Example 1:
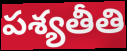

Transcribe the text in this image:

పశ్యతీతి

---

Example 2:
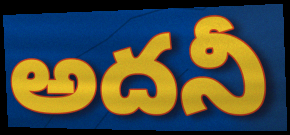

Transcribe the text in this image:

అదనీ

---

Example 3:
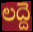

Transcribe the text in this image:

లద్దె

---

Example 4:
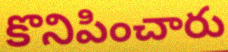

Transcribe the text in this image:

కొనిపించారు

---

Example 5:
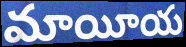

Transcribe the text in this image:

మాయీయ